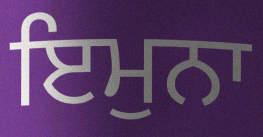
ਇਮੁਨਾ